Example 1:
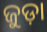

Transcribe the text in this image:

ଜୁଡ଼ା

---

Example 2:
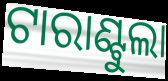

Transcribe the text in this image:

ଟାରାଣ୍ଟୁଲା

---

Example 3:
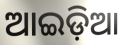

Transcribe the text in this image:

ଆଇଡ଼ିଆ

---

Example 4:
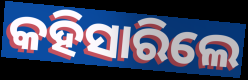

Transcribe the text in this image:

କହିସାରିଲେ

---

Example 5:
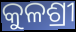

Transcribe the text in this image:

କୁଳଶ୍ରୀ